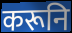
करूनि